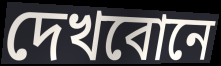
দেখবোনে